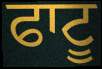
ਫਾਟੂ